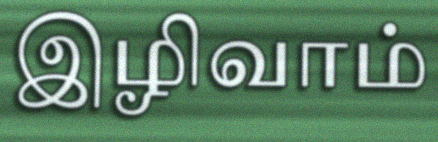
இழிவாம்